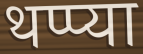
थप्प्या